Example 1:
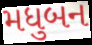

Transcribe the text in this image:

મધુબન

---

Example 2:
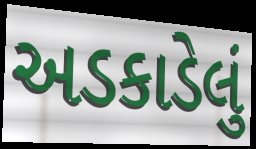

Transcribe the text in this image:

અડકાડેલું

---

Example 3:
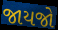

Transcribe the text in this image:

જાયજો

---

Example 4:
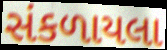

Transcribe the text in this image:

સંકળાયલા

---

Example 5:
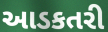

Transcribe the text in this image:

આડકતરી